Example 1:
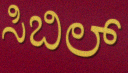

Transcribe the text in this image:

ಸಿಬಿಲ್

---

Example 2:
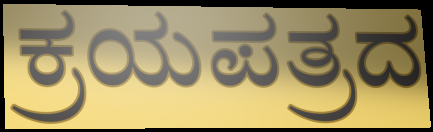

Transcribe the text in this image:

ಕ್ರಯಪತ್ರದ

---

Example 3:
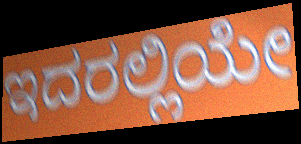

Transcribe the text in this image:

ಇದರಲ್ಲಿಯೇ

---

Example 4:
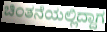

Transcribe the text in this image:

ಚಿಂತನೆಯಲ್ಲಿದ್ದಾಗ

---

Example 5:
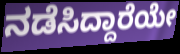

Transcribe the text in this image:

ನಡೆಸಿದ್ದಾರೆಯೇ